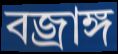
বজ্রাঙ্গ